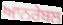
ਆਨਰੇਬਲ